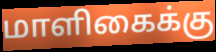
மாளிகைக்கு